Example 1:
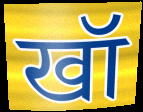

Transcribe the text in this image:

खॉ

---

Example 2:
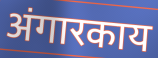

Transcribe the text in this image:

अंगारकाय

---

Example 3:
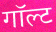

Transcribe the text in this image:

गॉल्ट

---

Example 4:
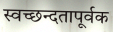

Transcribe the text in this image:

स्वच्छन्दतापूर्वक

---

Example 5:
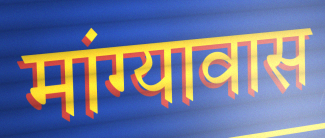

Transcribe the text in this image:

मांग्यावास